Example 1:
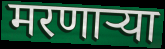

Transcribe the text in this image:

मरणार्‍या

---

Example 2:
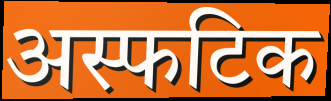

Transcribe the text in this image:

अस्फटिक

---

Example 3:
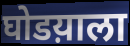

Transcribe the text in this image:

घोडय़ाला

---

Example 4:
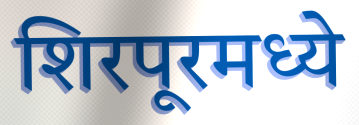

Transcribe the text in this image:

शिरपूरमध्ये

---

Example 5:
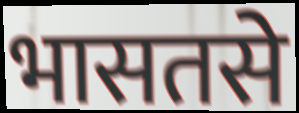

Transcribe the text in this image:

भासतसे